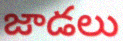
జాడలు